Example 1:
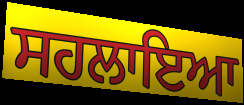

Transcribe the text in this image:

ਸਹਲਾਇਆ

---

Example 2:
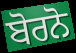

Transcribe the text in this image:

ਬੋਰਨੋ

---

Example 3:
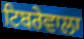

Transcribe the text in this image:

ਟਿਬਰੇਵਾਲਾ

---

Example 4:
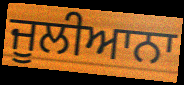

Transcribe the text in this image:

ਜੂਲੀਆਨਾ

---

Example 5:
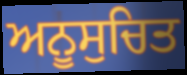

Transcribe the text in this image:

ਅਨੂਸੁਚਿਤ